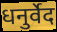
धनुर्वेद